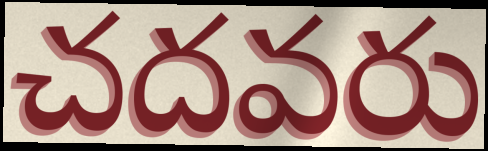
చదవరు